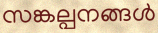
സങ്കല്പനങ്ങൾ